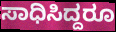
ಸಾಧಿಸಿದ್ದರೂ